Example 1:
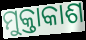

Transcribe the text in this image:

ମୁକ୍ତାକାଶ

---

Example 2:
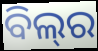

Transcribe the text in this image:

ବିଲ୍‌ର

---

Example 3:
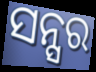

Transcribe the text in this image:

ସନ୍ସର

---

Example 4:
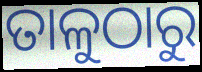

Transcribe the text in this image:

ତାଳୁଠାରୁ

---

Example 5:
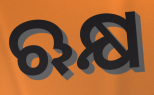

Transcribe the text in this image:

ଋକ୍ଷ